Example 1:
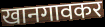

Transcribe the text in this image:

खानगावकर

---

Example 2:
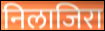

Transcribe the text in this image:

निलाजिरा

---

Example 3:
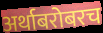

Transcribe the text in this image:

अर्थाबरोबरच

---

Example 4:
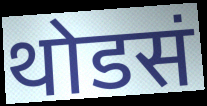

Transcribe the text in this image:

थोडसं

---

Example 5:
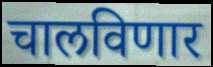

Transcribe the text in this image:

चालविणार